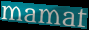
mamat